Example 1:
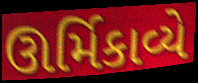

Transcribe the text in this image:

ઊર્મિકાવ્યે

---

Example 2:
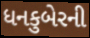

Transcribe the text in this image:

ધનકુબેરની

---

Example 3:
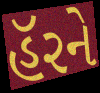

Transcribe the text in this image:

હૅરને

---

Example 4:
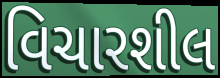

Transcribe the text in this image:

વિચારશીલ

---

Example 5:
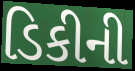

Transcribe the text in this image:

ડિકીની